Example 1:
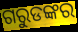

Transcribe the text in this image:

ଗରୁଡଙ୍କର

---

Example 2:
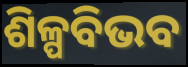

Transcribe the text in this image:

ଶିଳ୍ପବିଭବ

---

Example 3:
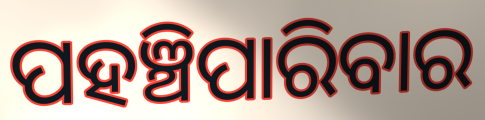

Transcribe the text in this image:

ପହଞ୍ଚିପାରିବାର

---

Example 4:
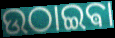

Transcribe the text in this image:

ଉଠାଇଵା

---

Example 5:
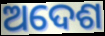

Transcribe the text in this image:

ଅଦେଶ